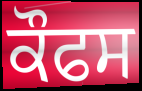
ਕੌਫਸ